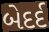
બેદર્દ